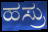
ಹಸ್ರು